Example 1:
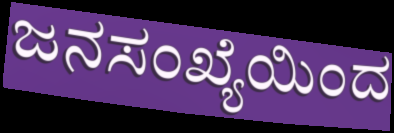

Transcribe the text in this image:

ಜನಸಂಖ್ಯೆಯಿಂದ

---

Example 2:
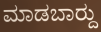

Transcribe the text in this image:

ಮಾಡಬಾರ್‍ದು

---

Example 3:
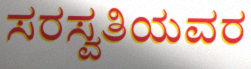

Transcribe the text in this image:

ಸರಸ್ವತಿಯವರ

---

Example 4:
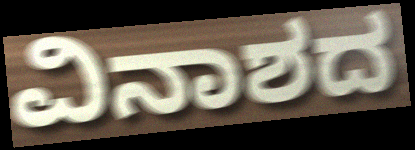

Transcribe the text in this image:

ವಿನಾಶದ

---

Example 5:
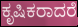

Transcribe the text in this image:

ಕೃಷಿಕರಾದರೆ